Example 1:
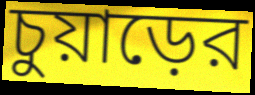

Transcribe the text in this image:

চুয়াড়ের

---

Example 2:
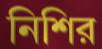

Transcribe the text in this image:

নিশির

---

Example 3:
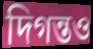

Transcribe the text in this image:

দিগন্তও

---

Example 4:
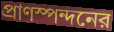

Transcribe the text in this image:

প্রাণস্পন্দনের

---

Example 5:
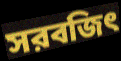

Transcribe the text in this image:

সরবজিৎ